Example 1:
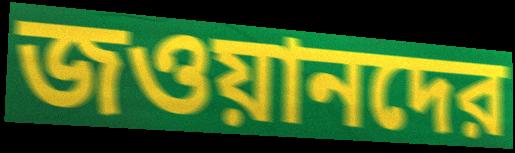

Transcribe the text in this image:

জওয়ানদের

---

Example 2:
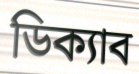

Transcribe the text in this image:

ডিক্যাব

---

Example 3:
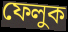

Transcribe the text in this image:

ফেলুক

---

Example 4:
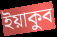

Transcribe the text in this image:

ইয়াকুব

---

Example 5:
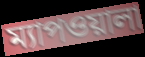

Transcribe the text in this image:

ম্যাপওয়ালা